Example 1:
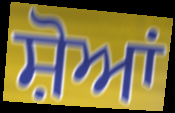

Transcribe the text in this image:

ਸ਼ੋਆਂ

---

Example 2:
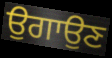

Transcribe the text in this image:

ਉਗਾਉਣ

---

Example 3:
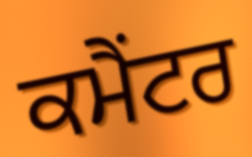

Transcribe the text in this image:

ਕਮੈਂਟਰ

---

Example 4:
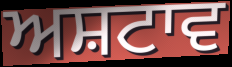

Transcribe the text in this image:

ਅਸ਼ਟਾਵ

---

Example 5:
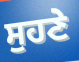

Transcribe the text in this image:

ਸੁਹਣੇ